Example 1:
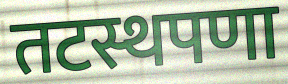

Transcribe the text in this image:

तटस्थपणा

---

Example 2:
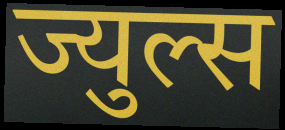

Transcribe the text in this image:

ज्युल्स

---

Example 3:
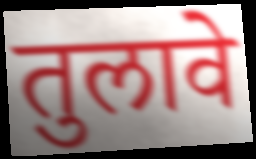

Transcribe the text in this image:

तुलावे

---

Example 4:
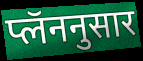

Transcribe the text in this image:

प्लॅननुसार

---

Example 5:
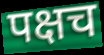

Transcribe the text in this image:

पक्षच